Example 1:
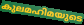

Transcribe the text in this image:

കുലമഹിമയുടെ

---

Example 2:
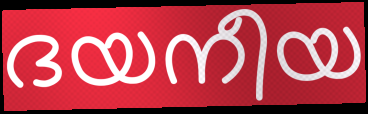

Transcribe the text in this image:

ദയനീയ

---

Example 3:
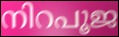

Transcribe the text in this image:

നിറപൂജ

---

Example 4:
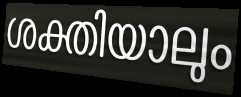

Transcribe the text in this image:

ശക്തിയാലും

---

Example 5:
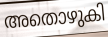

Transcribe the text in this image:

അതൊഴുകി